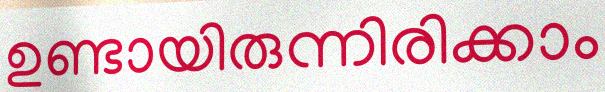
ഉണ്ടായിരുന്നിരിക്കാം